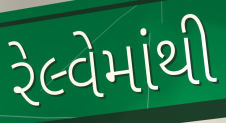
રેલ્વેમાંથી